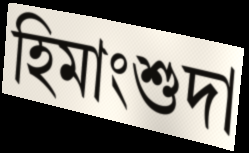
হিমাংশুদা